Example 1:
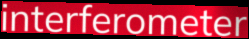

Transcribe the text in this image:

interferometer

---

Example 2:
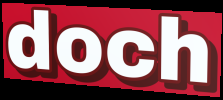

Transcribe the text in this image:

doch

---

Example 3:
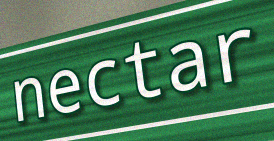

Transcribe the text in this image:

nectar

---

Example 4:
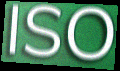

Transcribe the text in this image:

ISO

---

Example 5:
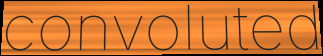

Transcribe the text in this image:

convoluted